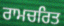
ਰਾਮਚਰਿਤ